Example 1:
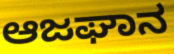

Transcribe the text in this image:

ಆಜಘಾನ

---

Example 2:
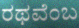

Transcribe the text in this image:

ರಥವೆಂಬ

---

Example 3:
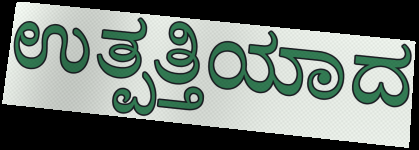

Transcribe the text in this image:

ಉತ್ಪತ್ತಿಯಾದ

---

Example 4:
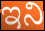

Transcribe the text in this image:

ಇನಿ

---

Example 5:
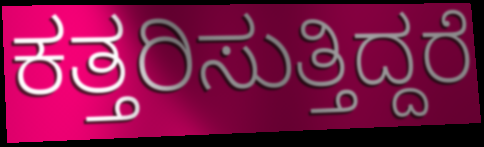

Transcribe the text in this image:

ಕತ್ತರಿಸುತ್ತಿದ್ದರೆ